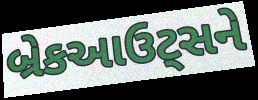
બ્રેકઆઉટ્સને